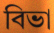
বিভা